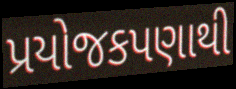
પ્રયોજકપણાથી